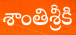
శాంతిశ్రీకి